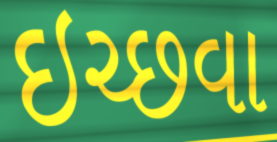
ઇચ્છવા